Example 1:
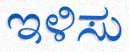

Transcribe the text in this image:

ಇಳಿಸು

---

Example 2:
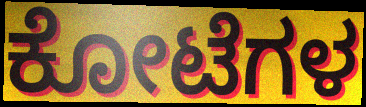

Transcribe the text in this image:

ಕೋಟೆಗಳ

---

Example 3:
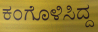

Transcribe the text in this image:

ಕಂಗೊಳಿಸಿದ್ದ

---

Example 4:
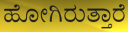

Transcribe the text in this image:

ಹೋಗಿರುತ್ತಾರೆ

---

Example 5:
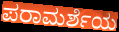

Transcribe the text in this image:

ಪರಾಮರ್ಶೆಯ